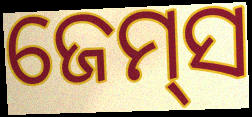
ଜେମ୍‍ସ